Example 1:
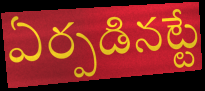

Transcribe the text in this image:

ఏర్పడినట్టే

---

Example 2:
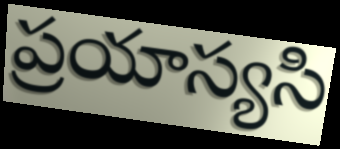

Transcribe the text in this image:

ప్రయాస్యసి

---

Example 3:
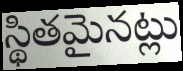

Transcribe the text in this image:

స్థితమైనట్లు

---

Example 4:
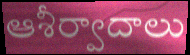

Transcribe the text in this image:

ఆశీర్వాదాలు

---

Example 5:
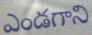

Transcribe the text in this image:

ఎండగాని